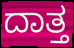
ದಾತ್ತ